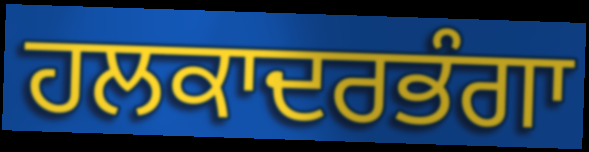
ਹਲਕਾਦਰਭੰਗਾ